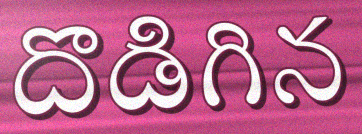
దొడిగిన